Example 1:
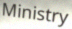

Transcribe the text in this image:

Ministry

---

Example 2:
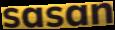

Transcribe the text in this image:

sasan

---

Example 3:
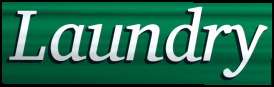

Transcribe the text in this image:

Laundry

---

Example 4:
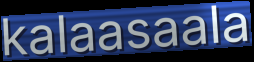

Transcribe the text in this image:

kalaasaala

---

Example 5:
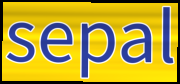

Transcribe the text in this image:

sepal